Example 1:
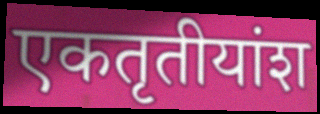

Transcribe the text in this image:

एकतृतीयांश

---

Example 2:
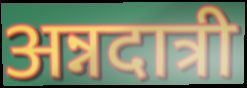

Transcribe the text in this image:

अन्नदात्री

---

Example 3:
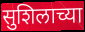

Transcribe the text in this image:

सुशिलाच्या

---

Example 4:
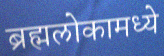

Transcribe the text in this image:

ब्रह्मलोकामध्ये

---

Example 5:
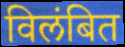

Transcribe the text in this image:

विलंबित